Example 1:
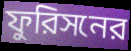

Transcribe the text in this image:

ফুরিসনের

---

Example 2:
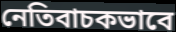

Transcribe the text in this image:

নেতিবাচকভাবে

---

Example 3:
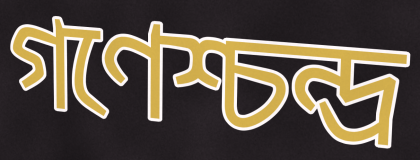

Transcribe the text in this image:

গণেশ্চন্দ্র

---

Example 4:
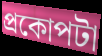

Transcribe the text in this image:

প্রকোপটা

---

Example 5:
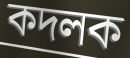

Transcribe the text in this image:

কদলক